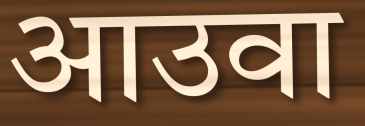
आउवा